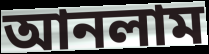
আনলাম